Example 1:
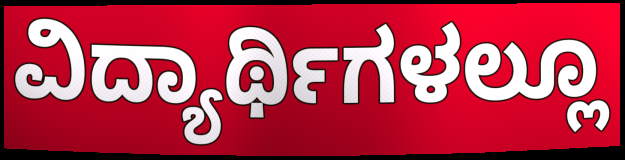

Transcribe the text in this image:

ವಿದ್ಯಾರ್ಥಿಗಳಲ್ಲೂ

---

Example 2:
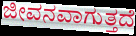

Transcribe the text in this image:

ಜೀವನವಾಗುತ್ತದೆ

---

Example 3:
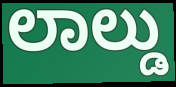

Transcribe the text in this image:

ಲಾಲ್ಡು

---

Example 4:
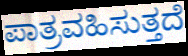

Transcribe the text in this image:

ಪಾತ್ರವಹಿಸುತ್ತದೆ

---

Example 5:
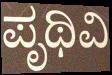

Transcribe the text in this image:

ಪೃಥಿವಿ